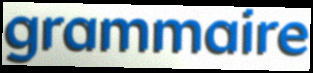
grammaire